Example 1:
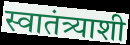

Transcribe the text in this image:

स्वातंत्र्याशी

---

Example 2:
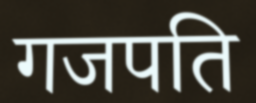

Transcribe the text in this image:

गजपति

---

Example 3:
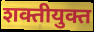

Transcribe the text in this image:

शक्तीयुक्त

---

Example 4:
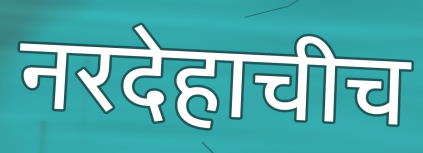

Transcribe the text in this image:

नरदेहाचीच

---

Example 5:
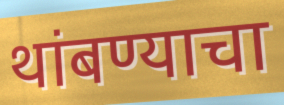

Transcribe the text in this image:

थांबण्याचा